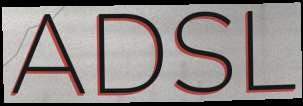
ADSL